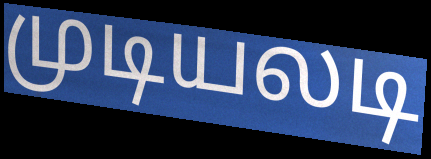
முடியலடி